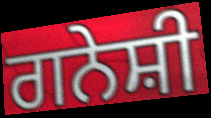
ਗਨੇਸ਼ੀ